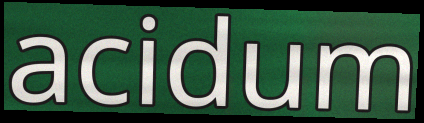
acidum